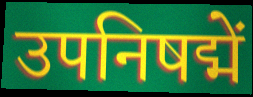
उपनिषद्में